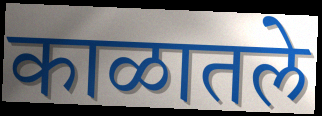
काळातले